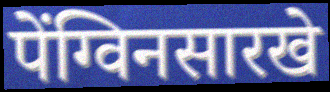
पेंग्विनसारखे